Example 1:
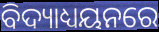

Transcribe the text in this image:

ବିଦ୍ୟାଧ୍ୟୟନରେ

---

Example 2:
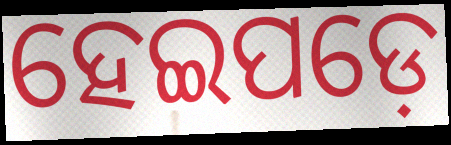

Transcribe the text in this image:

ହେଇପଡ଼େ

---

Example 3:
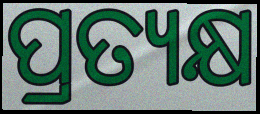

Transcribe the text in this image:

ପ୍ରତ୍ଯକ୍ଷ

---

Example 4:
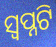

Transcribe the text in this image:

ସ୍ୱପ୍ନଟି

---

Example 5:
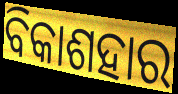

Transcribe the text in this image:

ବିକାଶହାର